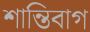
শান্তিবাগ